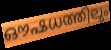
ഔഷധത്തിലും